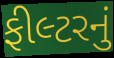
ફીલ્ટરનું